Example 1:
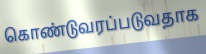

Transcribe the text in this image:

கொண்டுவரப்படுவதாக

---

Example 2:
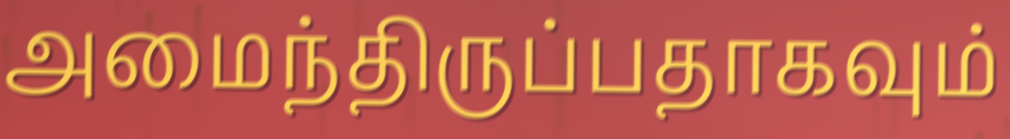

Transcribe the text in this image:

அமைந்திருப்பதாகவும்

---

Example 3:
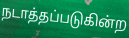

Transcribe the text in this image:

நடாத்தப்படுகின்ற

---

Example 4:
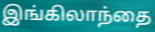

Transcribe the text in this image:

இங்கிலாந்தை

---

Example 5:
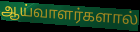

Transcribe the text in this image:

ஆய்வாளர்களால்